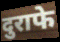
दुराफे